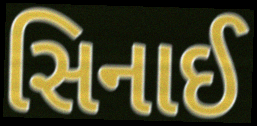
સિનાઈ